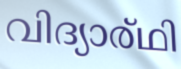
വിദ്യാര്ഥി